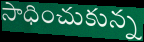
సాధించుకున్న